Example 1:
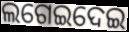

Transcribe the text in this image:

ଲଗେଇଦେଇ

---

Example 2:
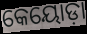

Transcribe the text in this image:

କେୟୋଡ଼ା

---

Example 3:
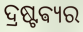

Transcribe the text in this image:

ଦ୍ରଷ୍ଟଵ୍ୟର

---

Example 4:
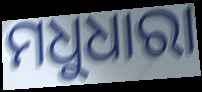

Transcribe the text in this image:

ମଧୁଧାରା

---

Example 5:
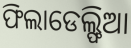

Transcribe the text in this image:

ଫିଲାଡେଲ୍ଫିଆ